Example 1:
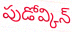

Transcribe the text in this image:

పుడోవ్కిన్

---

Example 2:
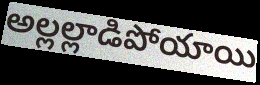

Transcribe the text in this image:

అల్లల్లాడిపోయాయి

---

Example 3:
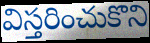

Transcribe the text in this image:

విస్తరించుకొని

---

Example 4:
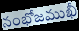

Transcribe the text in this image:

నంభోజముఖీ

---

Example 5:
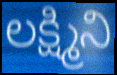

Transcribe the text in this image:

లక్ష్మిని